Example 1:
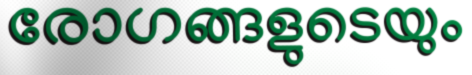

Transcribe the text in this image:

രോഗങ്ങളുടെയും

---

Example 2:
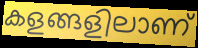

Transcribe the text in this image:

കളങ്ങളിലാണ്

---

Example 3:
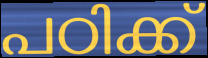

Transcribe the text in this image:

പഠിക്ക്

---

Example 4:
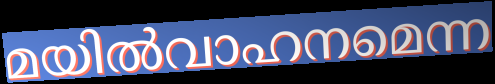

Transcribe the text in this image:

മയിൽവാഹനമെന്ന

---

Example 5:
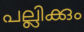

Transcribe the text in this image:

പല്ലിക്കും